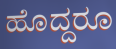
ಹೊದ್ದರೂ